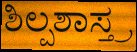
ಶಿಲ್ಪಶಾಸ್ತ್ರ